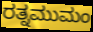
ರತ್ನಮುಮಂ